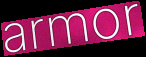
armor